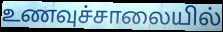
உணவுச்சாலையில்